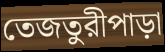
তেজতুরীপাড়া